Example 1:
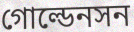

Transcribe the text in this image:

গোল্ডেনসন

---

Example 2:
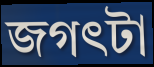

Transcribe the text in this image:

জগৎটা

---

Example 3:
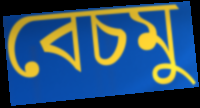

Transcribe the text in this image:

বেচমু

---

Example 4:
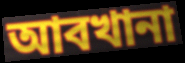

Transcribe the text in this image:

আবখানা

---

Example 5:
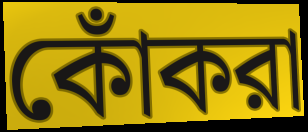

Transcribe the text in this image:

কোঁকরা